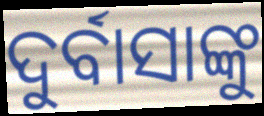
ଦୁର୍ବାସାଙ୍କୁ